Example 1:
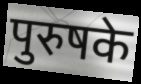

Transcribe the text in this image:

पुरुषके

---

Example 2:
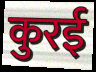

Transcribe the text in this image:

कुरई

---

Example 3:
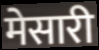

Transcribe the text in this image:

मेसारी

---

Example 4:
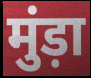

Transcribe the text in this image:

मुंड़ा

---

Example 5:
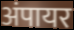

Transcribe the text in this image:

अंपायर